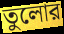
তুলোর